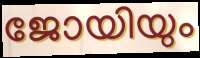
ജോയിയും